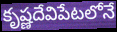
కృష్ణదేవిపేటలోనే